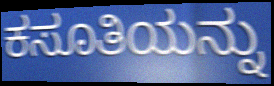
ಕಸೂತಿಯನ್ನು